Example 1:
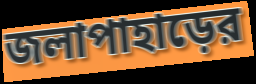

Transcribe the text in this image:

জলাপাহাড়ের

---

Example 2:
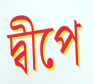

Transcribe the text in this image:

দ্বীপে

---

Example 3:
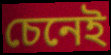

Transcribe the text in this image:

চেনেই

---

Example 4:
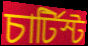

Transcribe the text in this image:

চার্টিস্ট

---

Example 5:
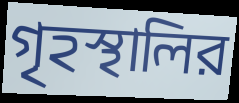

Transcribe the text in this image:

গৃহস্থালির